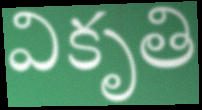
వికృతి